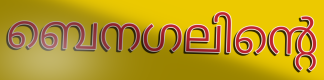
ബെനഗലിന്റെ